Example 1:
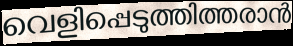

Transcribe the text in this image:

വെളിപ്പെടുത്തിത്തരാൻ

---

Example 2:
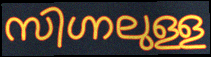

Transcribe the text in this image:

സിഗ്നലുള്ള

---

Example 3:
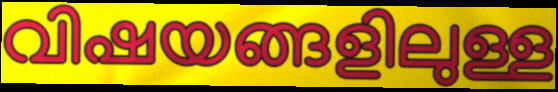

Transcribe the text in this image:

വിഷയങ്ങളിലുള്ള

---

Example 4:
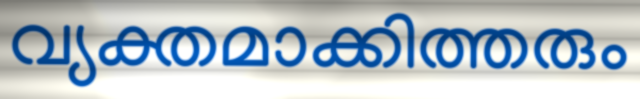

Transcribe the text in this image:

വ്യക്തമാക്കിത്തരും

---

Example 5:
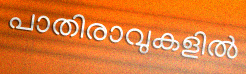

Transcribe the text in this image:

പാതിരാവുകളിൽ